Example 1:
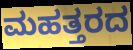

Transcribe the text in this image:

ಮಹತ್ತರದ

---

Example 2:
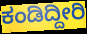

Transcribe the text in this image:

ಕಂಡಿದ್ದೀರಿ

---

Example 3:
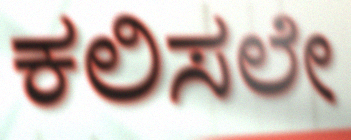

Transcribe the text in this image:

ಕಲಿಸಲೇ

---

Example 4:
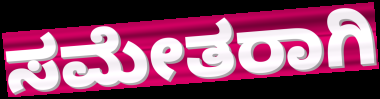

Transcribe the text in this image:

ಸಮೇತರಾಗಿ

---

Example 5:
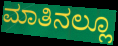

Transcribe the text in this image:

ಮಾತಿನಲ್ಲೂ